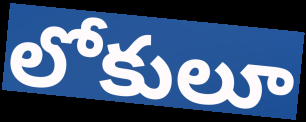
లోకులూ